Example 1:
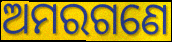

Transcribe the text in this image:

ଅମରଗଣେ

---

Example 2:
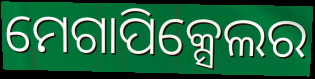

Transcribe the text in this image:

ମେଗାପିକ୍ସେଲର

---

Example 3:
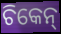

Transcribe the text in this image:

ଚିକେନ୍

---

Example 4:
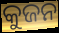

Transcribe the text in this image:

କୁଜନ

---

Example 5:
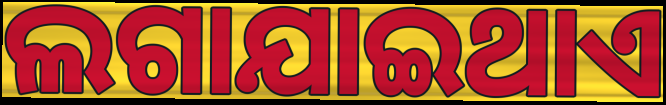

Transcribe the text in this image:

ଲଗାଯାଇଥାଏ